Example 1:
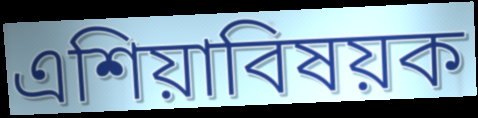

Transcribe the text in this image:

এশিয়াবিষয়ক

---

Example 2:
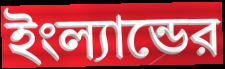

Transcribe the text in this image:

ইংল্যান্ডের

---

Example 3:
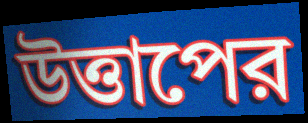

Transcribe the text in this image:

উত্তাপের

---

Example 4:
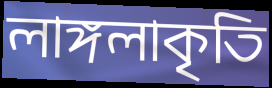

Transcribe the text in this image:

লাঙ্গলাকৃতি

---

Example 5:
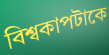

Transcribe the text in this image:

বিশ্বকাপটাকে